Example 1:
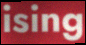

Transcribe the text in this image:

ising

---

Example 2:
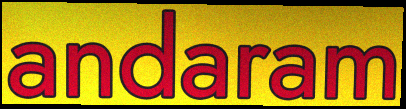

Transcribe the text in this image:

andaram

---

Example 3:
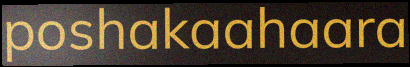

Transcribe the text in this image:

poshakaahaara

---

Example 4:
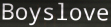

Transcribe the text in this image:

Boyslove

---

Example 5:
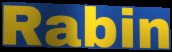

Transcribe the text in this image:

Rabin